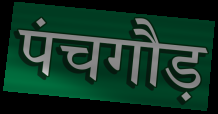
पंचगौड़